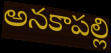
అనకాపల్లి